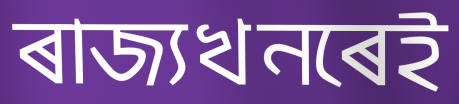
ৰাজ্যখনৰেই